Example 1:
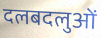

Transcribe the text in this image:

दलबदलुओं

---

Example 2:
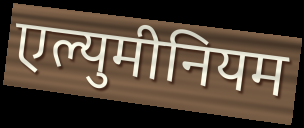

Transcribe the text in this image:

एल्युमीनियम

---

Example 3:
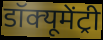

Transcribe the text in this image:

डॉक्‍यूमेंट्री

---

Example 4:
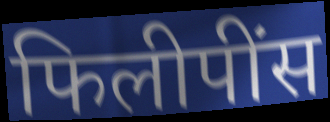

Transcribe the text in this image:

फिलीपींस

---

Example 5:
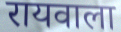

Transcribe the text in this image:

रायवाला